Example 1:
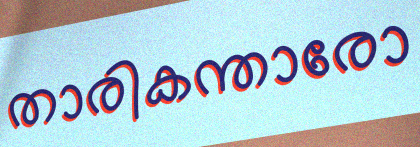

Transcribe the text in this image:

താരികന്താരോ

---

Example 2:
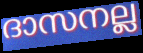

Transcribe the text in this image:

ദാസനല്ല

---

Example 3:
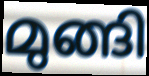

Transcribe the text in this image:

മുങ്ങി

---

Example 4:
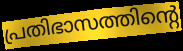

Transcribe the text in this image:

പ്രതിഭാസത്തിന്റെ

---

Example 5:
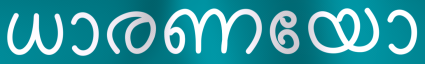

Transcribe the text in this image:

ധാരണയോ